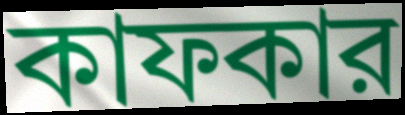
কাফকার